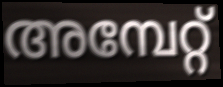
അമ്പേറ്റ്